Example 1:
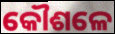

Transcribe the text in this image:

କୌଶଳେ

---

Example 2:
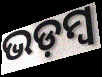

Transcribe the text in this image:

ଭଡ଼ମ୍ବ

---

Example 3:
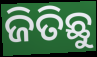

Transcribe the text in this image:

ଜିତିଛୁ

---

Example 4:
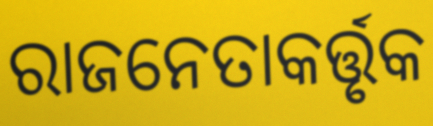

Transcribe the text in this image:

ରାଜନେତାକର୍ତ୍ତୃକ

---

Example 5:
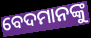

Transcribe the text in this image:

ବେଦମାନଙ୍କୁ